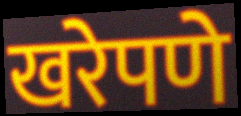
खरेपणे